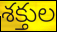
శక్తుల